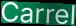
Carrel